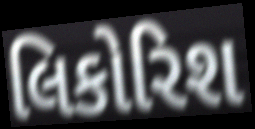
લિકોરિશ